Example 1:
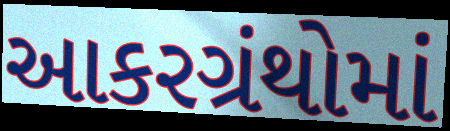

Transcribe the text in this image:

આકરગ્રંથોમાં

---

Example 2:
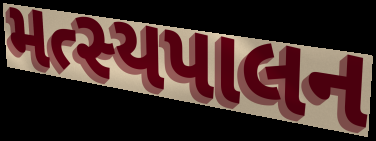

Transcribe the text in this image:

મત્સ્યપાલન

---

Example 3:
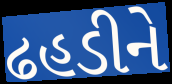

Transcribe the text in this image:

ઢહડીને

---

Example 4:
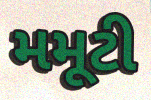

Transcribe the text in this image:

મમૂટી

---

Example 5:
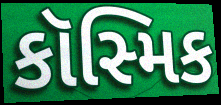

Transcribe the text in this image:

કૉસ્મિક